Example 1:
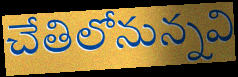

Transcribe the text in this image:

చేతిలోనున్నవి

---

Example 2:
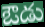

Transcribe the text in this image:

ఔడు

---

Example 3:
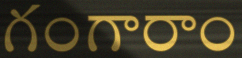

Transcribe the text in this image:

గంగారాం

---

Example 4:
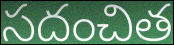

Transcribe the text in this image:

సదంచిత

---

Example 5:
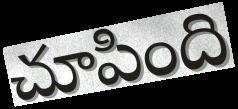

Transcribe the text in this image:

చూపింది